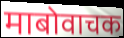
माबोवाचक